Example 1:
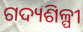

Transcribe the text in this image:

ଗଦ୍ୟଶିଳ୍ପୀ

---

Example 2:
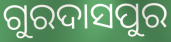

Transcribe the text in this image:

ଗୁରଦାସପୁର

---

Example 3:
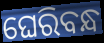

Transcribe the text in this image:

ଘେରିବନ୍ଧ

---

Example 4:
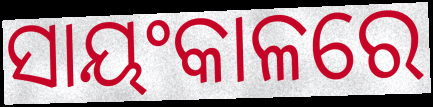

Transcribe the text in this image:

ସାୟଂକାଳରେ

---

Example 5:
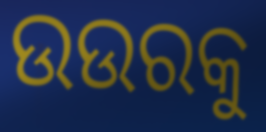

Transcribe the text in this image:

ଉଉରକୁ